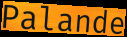
Palande